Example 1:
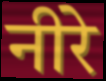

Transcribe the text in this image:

नीरे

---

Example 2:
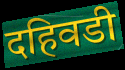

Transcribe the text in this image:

दहिवडी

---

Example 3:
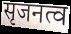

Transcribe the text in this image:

सृजनत्व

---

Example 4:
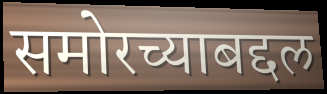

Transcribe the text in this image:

समोरच्याबद्दल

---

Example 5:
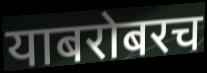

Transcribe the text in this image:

याबरोबरच